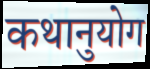
कथानुयोग